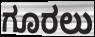
ಗೂರಲು